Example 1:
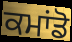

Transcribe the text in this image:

ਕਮਾਂਡੋ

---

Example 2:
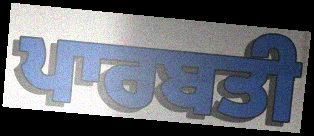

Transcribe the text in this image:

ਪਾਰਬਤੀ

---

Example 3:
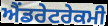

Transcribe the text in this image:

ਐਂਡਰੇਟਰੇਕਮੀ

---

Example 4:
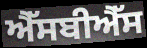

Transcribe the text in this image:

ਐੱਸਬੀਐੱਸ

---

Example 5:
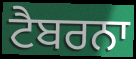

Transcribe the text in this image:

ਟੈਬਰਨਾ